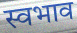
स्वभाव